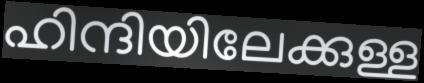
ഹിന്ദിയിലേക്കുള്ള